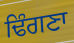
ਢਿੰਗਣਾ